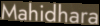
Mahidhara